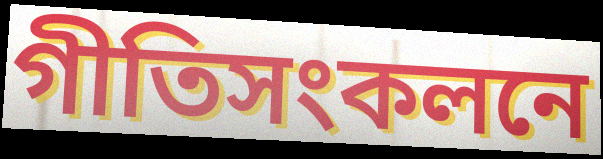
গীতিসংকলনে